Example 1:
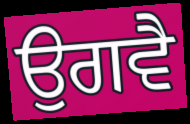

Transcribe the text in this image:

ਉਗਵੈ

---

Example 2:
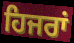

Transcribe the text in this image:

ਹਿਜਰਾਂ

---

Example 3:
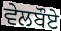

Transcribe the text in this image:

ਵੇਲਬੌਏ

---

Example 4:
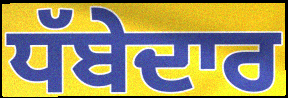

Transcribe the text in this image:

ਧੱਬੇਦਾਰ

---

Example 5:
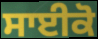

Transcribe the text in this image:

ਸਾਈਕੋ